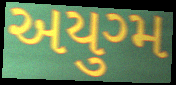
અયુગ્મ